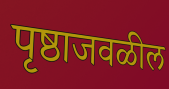
पृष्ठाजवळील